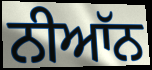
ਨੀਆੱਨ